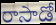
రాసాడో